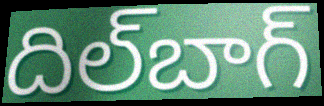
దిల్‌బాగ్